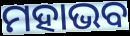
ମହାଭବ